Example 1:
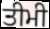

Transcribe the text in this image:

ਤੀਮੀ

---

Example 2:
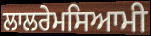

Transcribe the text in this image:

ਲਾਲਰੇਮਸਿਆਮੀ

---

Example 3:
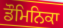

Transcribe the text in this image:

ਡੌਮਿਨਿਕਾ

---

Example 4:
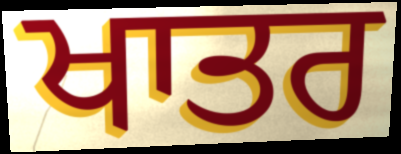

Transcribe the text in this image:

ਖਾਤਰ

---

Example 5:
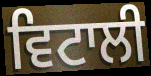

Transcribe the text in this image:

ਵਿਟਾਲੀ